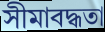
সীমাবদ্ধতা